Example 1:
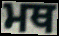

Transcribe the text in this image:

ਮਥ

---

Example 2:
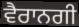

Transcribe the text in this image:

ਵੈਰਾਨਗੀ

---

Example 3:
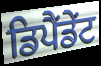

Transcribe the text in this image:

ਡਿਪੈਂਡੇਂਟ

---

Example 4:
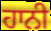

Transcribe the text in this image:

ਹਾਨੀ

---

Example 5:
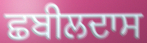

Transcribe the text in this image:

ਛਬੀਲਦਾਸ